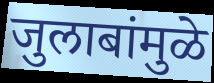
जुलाबांमुळे